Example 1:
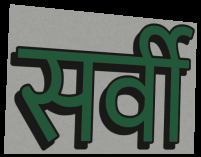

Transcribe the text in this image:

सर्वी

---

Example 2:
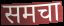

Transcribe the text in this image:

समचा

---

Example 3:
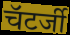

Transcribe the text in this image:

चॅटर्जी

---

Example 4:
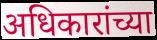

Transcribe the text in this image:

अधिकारांच्या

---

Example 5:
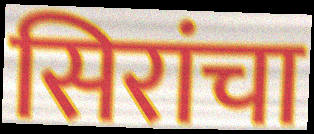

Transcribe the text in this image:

सिरांचा